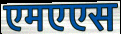
एमएएस